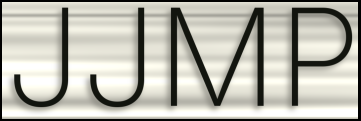
JJMP